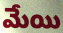
మేయి